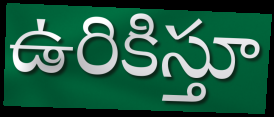
ఉరికిస్తూ